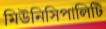
মিউনিসিপালিটি